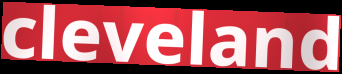
cleveland